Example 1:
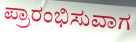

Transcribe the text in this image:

ಪ್ರಾರಂಭಿಸುವಾಗ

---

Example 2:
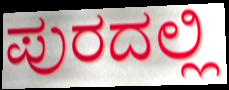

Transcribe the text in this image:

ಪುರದಲ್ಲಿ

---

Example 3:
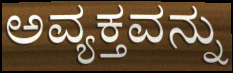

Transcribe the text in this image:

ಅವ್ಯಕ್ತವನ್ನು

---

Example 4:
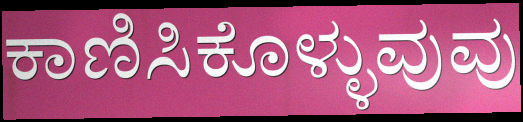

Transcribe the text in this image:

ಕಾಣಿಸಿಕೊಳ್ಳುವುವು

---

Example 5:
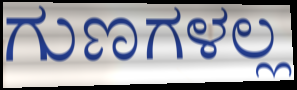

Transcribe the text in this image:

ಗುಣಗಳಲ್ಲ